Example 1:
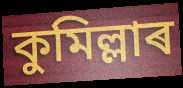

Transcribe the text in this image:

কুমিল্লাৰ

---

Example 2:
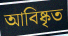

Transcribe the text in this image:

আবিষ্কৃত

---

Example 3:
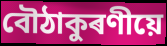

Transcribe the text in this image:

বৌঠাকুৰণীয়ে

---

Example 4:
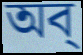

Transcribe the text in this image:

অব্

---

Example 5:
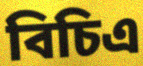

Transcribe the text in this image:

বিচিএ